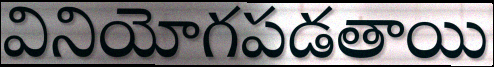
వినియోగపడతాయి